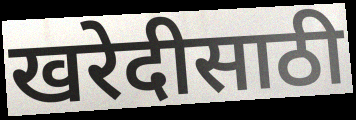
खरेदीसाठी